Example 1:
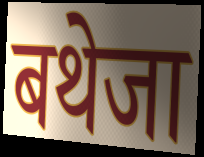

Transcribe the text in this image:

बथेजा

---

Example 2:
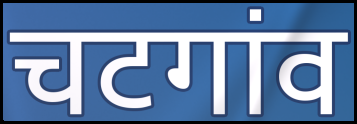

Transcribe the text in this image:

चटगांव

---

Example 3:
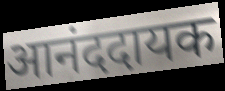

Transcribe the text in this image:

आनंददायक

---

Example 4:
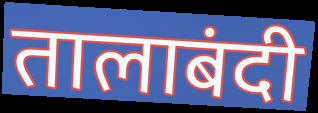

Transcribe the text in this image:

तालाबंदी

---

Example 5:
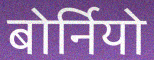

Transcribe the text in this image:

बोर्नियो